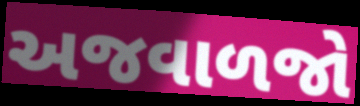
અજવાળજો